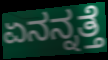
ಏನನ್ನತ್ತೆ